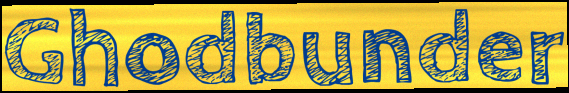
Ghodbunder